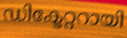
ഡിക്ടേറ്ററായി